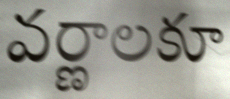
వర్ణాలకూ